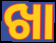
ଖା